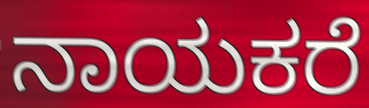
ನಾಯಕರೆ